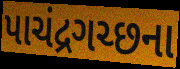
પાચંદ્રગચ્છના